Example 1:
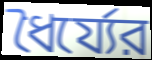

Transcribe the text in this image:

ধৈর্য্যের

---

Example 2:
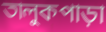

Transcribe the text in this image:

তালুকপাড়া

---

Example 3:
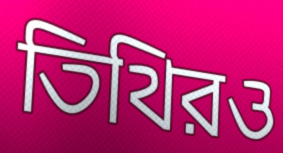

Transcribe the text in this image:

তিথিরও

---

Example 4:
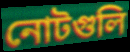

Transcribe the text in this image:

নোটগুলি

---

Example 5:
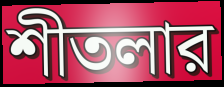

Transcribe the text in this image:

শীতলার